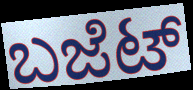
ಬಜೆಟ್